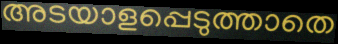
അടയാളപ്പെടുത്താതെ